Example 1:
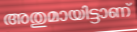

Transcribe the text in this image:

അതുമായിട്ടാണ്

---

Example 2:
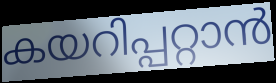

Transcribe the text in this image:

കയറിപ്പറ്റാൻ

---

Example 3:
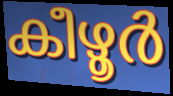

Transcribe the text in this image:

കീഴൂർ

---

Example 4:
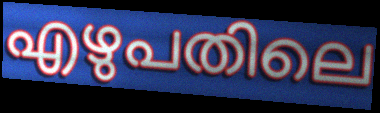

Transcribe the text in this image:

എഴുപതിലെ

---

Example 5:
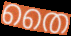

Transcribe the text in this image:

തൈ